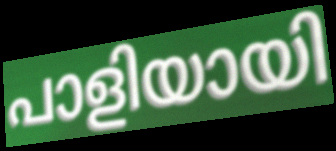
പാളിയായി